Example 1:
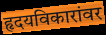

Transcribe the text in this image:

हृदयविकारांवर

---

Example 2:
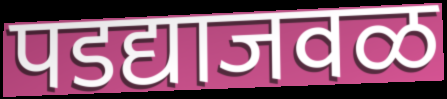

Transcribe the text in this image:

पडद्याजवळ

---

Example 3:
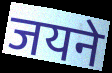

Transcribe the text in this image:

जयने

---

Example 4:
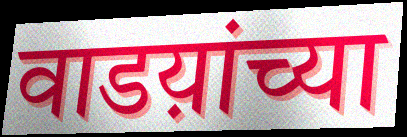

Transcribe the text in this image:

वाडय़ांच्या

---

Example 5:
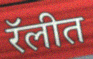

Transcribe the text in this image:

रॅलीत